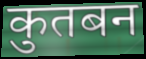
कुतबन